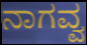
ನಾಗವ್ವ